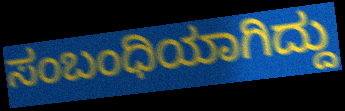
ಸಂಬಂಧಿಯಾಗಿದ್ದು